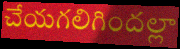
చేయగలిగిందల్లా